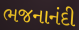
ભજનાનંદી